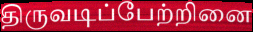
திருவடிப்பேற்றினை